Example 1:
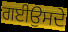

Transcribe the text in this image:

ਗਈਉਸਦੇ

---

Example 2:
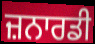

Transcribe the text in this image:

ਜ਼ਨਾਰਡੀ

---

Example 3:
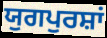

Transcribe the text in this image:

ਯੁਗਪੁਰਸ਼ਾਂ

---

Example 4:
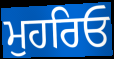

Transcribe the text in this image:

ਮੁਹਰਿਓ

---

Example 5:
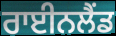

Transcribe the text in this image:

ਰਾਈਨਲੈਂਡ